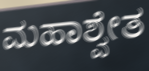
ಮಹಾಶ್ವೇತ